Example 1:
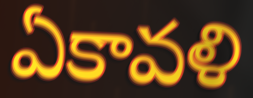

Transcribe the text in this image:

ఏకావళి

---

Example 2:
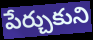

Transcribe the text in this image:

పేర్చుకుని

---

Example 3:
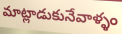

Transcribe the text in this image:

మాట్లాడుకునేవాళ్ళం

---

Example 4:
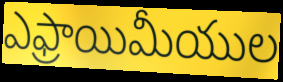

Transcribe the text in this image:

ఎఫ్రాయిమీయుల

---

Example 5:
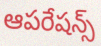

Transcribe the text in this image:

ఆపరేషన్స్